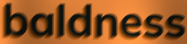
baldness